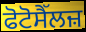
ਫੋਟੋਸੈੱਲਜ਼